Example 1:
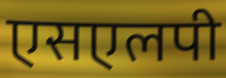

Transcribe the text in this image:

एसएलपी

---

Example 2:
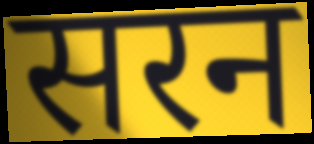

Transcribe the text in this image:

सरन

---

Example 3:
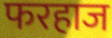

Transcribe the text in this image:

फरहाज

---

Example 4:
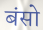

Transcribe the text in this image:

बंसो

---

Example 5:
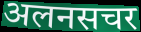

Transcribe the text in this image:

अलनसचर